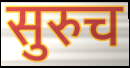
सुरुच